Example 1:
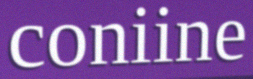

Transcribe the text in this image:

coniine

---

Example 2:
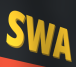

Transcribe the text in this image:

SWA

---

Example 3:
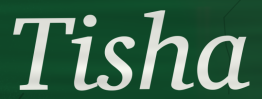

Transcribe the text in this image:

Tisha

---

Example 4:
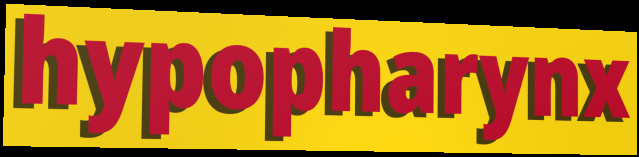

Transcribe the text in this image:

hypopharynx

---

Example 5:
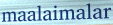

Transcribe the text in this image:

maalaimalar